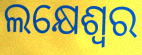
ଲକ୍ଷେଶ୍ୱର